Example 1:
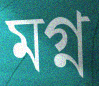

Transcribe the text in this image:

মগ্ন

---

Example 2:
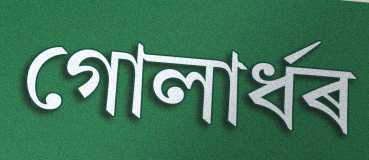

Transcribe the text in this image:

গোলাৰ্ধৰ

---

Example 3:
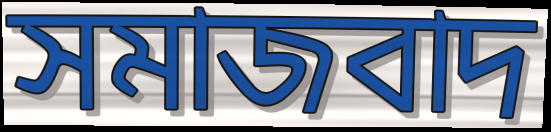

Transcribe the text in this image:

সমাজবাদ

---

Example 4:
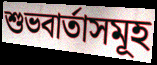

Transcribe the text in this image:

শুভবাৰ্তাসমূহ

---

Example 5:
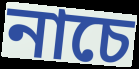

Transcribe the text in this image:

নাচে